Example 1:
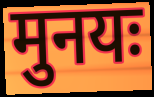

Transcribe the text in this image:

मुनयः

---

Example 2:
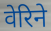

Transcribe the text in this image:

वेरिने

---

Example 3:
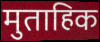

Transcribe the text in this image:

मुताहिक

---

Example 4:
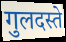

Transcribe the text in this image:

गुलदस्ते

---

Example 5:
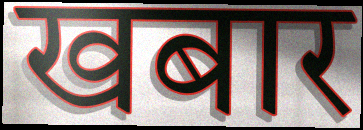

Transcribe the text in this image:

खबार